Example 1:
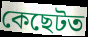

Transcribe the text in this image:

কেছেটত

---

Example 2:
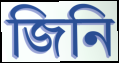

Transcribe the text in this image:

জিনি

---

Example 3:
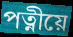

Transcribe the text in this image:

পত্নীয়ে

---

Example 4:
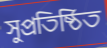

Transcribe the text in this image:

সুপ্ৰতিষ্ঠিত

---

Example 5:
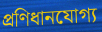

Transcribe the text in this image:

প্ৰণিধানযোগ্য